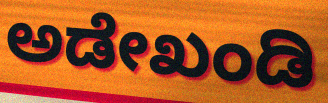
ಅಡೇಖಂಡಿ